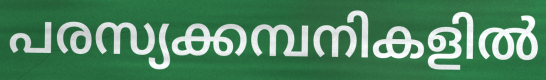
പരസ്യക്കമ്പനികളിൽ